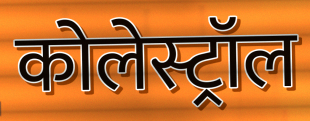
कोलेस्‍ट्रॉल